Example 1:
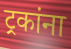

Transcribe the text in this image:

ट्रकांना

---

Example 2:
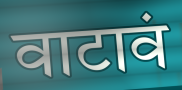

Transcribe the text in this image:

वाटावं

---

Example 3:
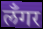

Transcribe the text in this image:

लँगर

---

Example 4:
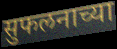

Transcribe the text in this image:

सुफलनाच्या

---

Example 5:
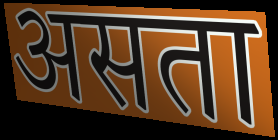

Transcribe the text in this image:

असता